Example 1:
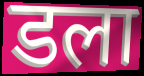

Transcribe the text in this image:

डला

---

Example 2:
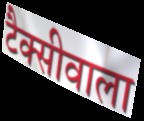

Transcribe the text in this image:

टैक्सीवाला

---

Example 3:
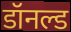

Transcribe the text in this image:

डॉनल्ड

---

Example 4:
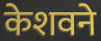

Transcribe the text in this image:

केशवने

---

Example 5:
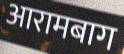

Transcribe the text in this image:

आरामबाग